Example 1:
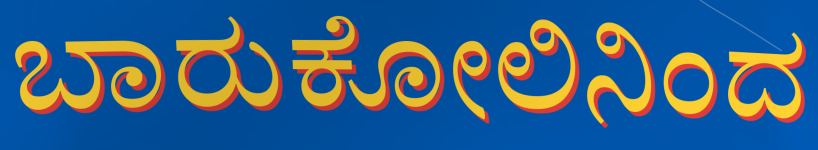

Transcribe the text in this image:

ಬಾರುಕೋಲಿನಿಂದ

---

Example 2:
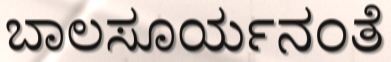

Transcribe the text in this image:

ಬಾಲಸೂರ್ಯನಂತೆ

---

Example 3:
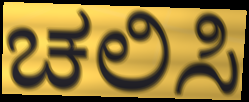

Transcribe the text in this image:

ಚಲಿಸಿ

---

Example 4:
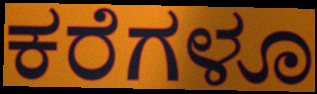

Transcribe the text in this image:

ಕರೆಗಳೂ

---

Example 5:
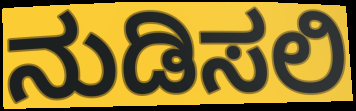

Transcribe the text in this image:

ನುಡಿಸಲಿ